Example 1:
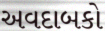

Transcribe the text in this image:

અવદાબકો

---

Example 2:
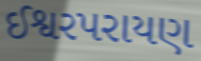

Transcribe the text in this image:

ઈશ્વરપરાયણ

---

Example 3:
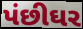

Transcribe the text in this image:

પંછીઘર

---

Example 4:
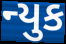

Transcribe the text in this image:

ન્યુક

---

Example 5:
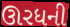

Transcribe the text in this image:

ઊરધની